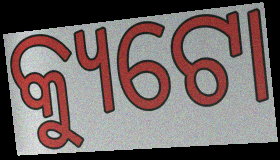
କ୍ୟୁଟୋ